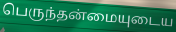
பெருந்தன்மையுடைய